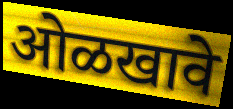
ओळखावे